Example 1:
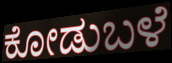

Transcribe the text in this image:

ಕೋಡುಬಳೆ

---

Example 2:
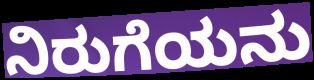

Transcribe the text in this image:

ನಿರುಗೆಯನು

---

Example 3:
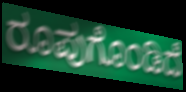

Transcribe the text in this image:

ರೂಪುಗೊಂಡಿದೆ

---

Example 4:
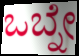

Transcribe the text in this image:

ಒಬ್ನೇ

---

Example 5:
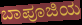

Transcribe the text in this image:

ಬಾಪೂಜಿಯ